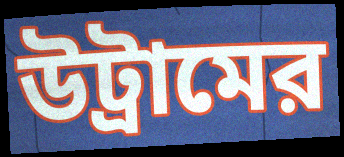
উট্রামের